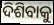
ଦିଶିବାକୁ